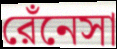
রেঁনেসা